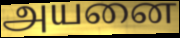
அயனை